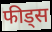
फीड्स